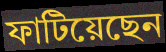
ফাটিয়েছেন